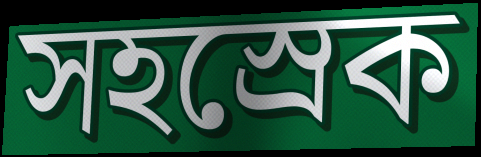
সহস্রেক